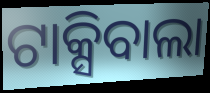
ଟାକ୍ସିବାଲା